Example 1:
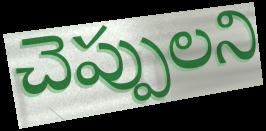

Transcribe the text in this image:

చెప్పులని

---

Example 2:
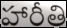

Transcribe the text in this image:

హారీతి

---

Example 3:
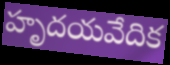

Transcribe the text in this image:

హృదయవేదిక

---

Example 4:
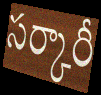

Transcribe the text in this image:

సర్కారీ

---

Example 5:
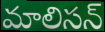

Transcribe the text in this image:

మాలిసన్